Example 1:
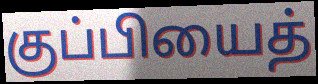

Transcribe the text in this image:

குப்பியைத்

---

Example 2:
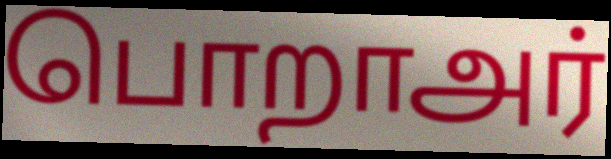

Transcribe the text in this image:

பொறாஅர்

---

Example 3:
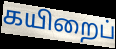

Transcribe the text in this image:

கயிறைப்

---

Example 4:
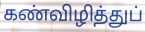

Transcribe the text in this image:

கண்விழித்துப்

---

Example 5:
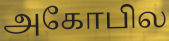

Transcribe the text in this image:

அகோபில